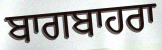
ਬਾਗਬਾਹਰਾ